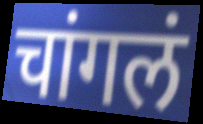
चांगलं